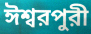
ঈশ্বরপুরী